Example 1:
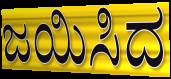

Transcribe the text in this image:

ಜಯಿಸಿದ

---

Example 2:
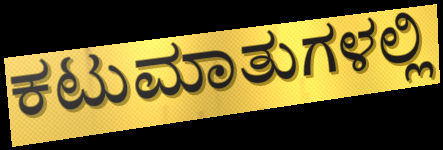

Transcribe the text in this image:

ಕಟುಮಾತುಗಳಲ್ಲಿ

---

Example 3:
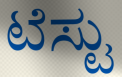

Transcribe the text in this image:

ಟೆಸ್ಟು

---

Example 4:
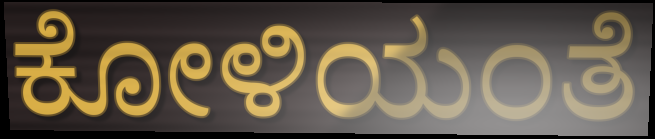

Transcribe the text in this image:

ಕೋಳಿಯಂತೆ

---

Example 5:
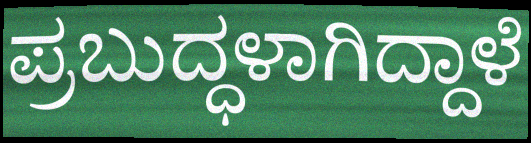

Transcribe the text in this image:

ಪ್ರಬುದ್ಧಳಾಗಿದ್ದಾಳೆ